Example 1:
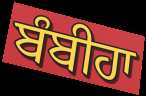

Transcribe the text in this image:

ਬੰਬੀਹਾ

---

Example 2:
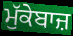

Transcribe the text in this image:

ਮੁੱਕੇਬਾਜ਼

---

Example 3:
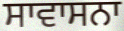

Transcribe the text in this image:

ਸਾਵਾਸਨਾ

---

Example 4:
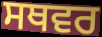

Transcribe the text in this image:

ਸਥਵਰ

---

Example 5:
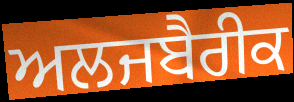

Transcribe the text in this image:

ਅਲਜਬੈਰੀਕ